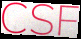
CSF